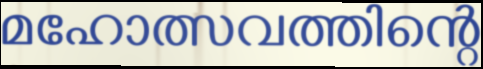
മഹോത്സവത്തിന്റെ